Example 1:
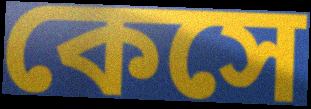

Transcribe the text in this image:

কেসে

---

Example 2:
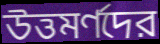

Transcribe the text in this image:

উত্তমর্ণদের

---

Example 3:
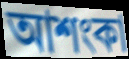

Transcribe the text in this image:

আশংকা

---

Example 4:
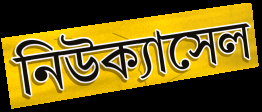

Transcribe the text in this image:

নিউক্যাসেল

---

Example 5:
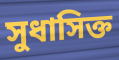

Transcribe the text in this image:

সুধাসিক্ত